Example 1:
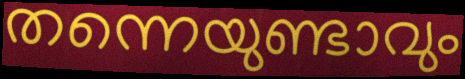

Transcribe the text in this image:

തന്നെയുണ്ടാവും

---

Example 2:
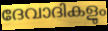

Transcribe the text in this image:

ദേവാദികളും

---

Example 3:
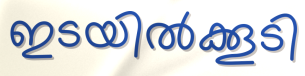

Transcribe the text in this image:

ഇടയിൽക്കൂടി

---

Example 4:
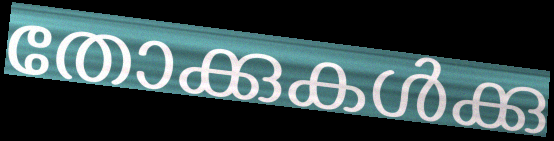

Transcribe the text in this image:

തോക്കുകൾക്കു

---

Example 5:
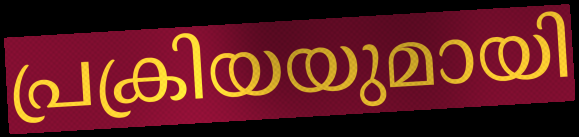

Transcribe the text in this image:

പ്രക്രിയയുമായി